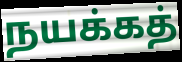
நயக்கத்